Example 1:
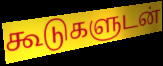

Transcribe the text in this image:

கூடுகளுடன்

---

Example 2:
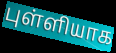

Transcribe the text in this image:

புள்ளியாக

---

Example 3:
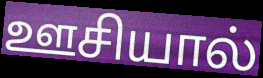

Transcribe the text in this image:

ஊசியால்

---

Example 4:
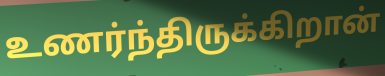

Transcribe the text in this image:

உணர்ந்திருக்கிறான்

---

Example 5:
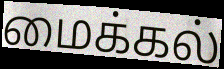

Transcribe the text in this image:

மைக்கல்